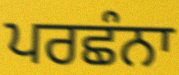
ਪਰਛੰਨਾ